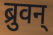
ब्रुवन्